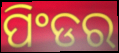
ପିଂଡର